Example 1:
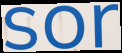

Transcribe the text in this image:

sor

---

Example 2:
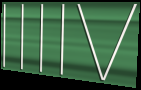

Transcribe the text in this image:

IIIIV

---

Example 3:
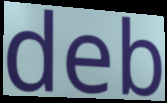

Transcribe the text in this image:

deb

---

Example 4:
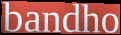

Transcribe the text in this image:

bandho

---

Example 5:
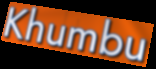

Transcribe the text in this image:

Khumbu